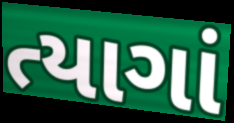
ત્યાગાં